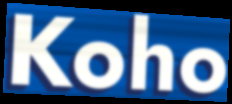
Koho